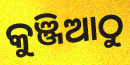
କୁଞ୍ଜିଆଠୁ